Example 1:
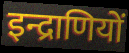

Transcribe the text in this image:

इन्द्राणियों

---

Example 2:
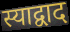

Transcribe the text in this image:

स्याद्वाद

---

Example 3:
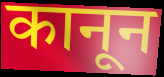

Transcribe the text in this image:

कानून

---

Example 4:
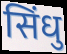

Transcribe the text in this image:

सिंधु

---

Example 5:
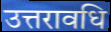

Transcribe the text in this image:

उत्तरावधि